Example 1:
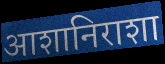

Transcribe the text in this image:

आशानिराशा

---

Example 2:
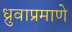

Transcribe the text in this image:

ध्रुवाप्रमाणे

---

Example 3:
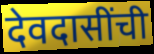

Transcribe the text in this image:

देवदासींची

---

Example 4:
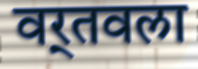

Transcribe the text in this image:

वर्तवला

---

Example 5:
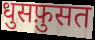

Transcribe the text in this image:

धुसफ़ुसत